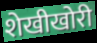
शेखीखोरी